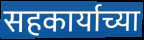
सहकार्याच्या